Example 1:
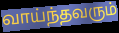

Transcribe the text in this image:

வாய்ந்தவரும்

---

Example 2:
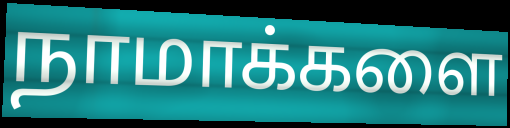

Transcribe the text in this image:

நாமாக்களை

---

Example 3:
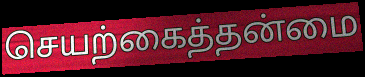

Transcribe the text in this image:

செயற்கைத்தன்மை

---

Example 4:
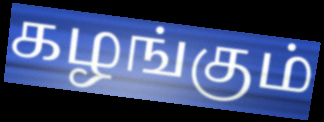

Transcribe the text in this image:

கழங்கும்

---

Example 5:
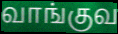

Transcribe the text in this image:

வாங்குவ